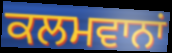
ਕਲਮਵਾਨਾਂ